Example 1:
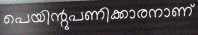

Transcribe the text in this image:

പെയിന്റുപണിക്കാരനാണ്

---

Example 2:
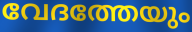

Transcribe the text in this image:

വേദത്തേയും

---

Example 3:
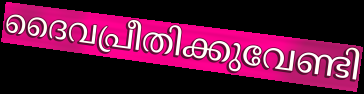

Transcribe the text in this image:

ദൈവപ്രീതിക്കുവേണ്ടി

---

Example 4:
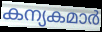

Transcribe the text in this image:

കന്യകമാർ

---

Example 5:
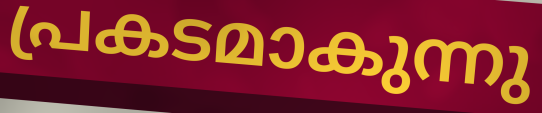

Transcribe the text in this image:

പ്രകടമാകുന്നു